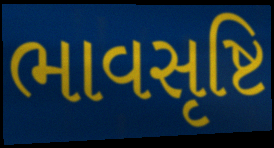
ભાવસૃષ્ટિ